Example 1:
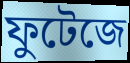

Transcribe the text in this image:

ফুটেজে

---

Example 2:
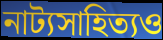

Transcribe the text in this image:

নাট্যসাহিত্যও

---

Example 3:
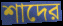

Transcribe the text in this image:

শাদের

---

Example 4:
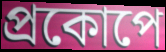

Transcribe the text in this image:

প্রকোপে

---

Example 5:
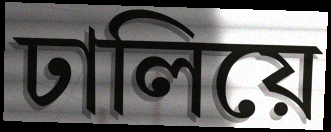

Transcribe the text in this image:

ঢালিয়ে